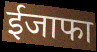
ईजाफा